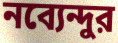
নব্যেন্দুর